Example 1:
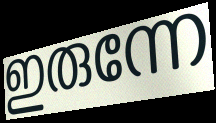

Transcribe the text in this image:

ഇരുന്നേ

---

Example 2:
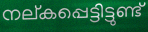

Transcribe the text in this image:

നല്കപ്പെട്ടിട്ടുണ്ട്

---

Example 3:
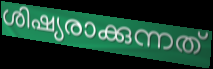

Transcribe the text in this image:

ശിഷ്യരാക്കുന്നത്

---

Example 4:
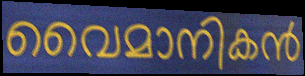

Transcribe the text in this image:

വൈമാനികൻ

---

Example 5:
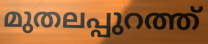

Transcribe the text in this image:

മുതലപ്പുറത്ത്